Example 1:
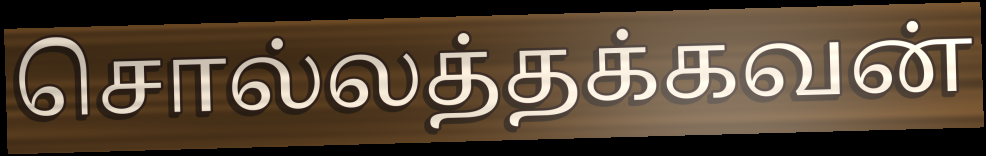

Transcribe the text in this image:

சொல்லத்தக்கவன்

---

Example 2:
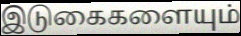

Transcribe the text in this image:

இடுகைகளையும்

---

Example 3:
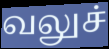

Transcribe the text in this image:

வலுச்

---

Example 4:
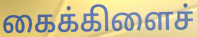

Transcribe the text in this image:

கைக்கிளைச்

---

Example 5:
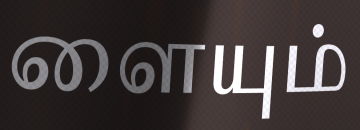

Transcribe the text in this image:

ளையும்